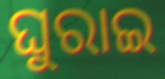
ଘୁରାଇ